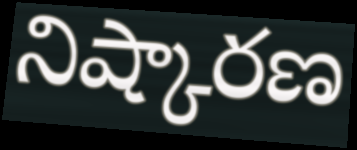
నిష్కారణ